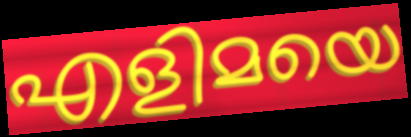
എളിമയെ